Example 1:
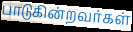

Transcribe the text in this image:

பாடுகின்றவர்கள்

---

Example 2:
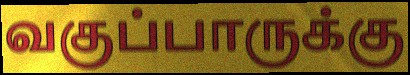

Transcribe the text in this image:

வகுப்பாருக்கு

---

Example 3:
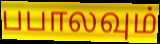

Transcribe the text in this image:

பபாலவும்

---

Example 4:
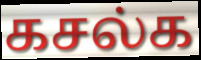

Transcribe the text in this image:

கசல்க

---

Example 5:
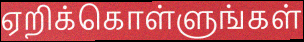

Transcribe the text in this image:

ஏறிக்கொள்ளுங்கள்